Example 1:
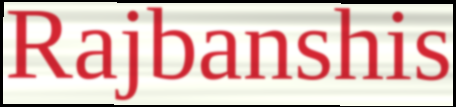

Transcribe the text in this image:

Rajbanshis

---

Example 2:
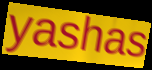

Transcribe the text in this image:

yashas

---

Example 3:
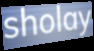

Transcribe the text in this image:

sholay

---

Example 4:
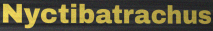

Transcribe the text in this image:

Nyctibatrachus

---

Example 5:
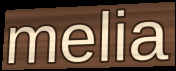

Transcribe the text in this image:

melia